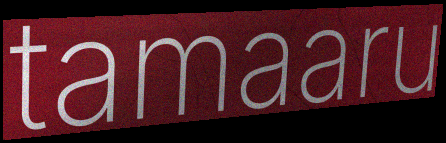
tamaaru